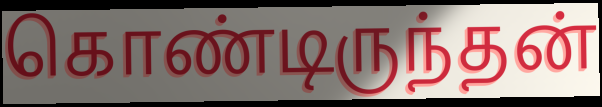
கொண்டிருந்தன்